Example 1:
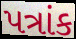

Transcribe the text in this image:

પત્રાંક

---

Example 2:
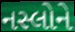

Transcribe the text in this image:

નસ્લોને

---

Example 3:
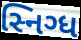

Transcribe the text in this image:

સ્નિગ્ધ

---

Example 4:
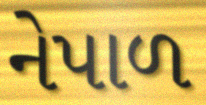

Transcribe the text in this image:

નેપાળ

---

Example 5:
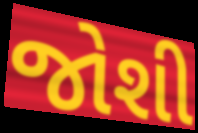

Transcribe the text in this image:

જોશી